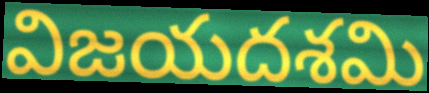
విజయదశమి